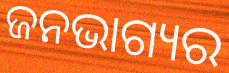
ଜନଭାଗ୍ୟର